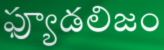
ఫ్యూడలిజం